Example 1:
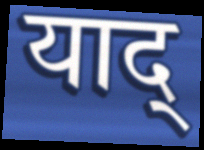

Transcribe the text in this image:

याद्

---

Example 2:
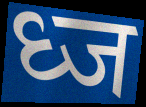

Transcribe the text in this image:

ध्ज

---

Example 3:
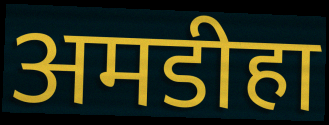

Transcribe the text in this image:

अमडीहा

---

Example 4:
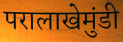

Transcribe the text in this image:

परालाखेमुंडी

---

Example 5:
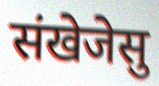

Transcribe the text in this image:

संखेजेसु